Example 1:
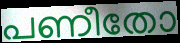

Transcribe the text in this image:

പണീതോ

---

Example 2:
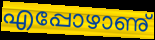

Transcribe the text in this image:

എപ്പോഴാണു്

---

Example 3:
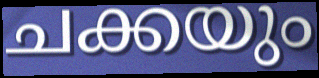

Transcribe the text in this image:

ചക്കയും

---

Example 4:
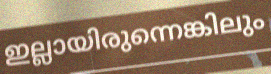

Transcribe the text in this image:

ഇല്ലായിരുന്നെങ്കിലും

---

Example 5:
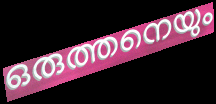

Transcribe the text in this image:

ഒരുത്തനെയും